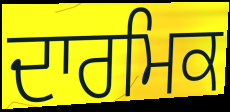
ਦਾਰਮਿਕ